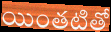
యింతటితో